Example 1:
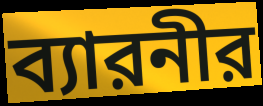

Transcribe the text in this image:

ব্যারনীর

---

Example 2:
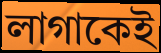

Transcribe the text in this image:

লাগাকেই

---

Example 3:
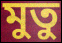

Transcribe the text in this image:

মুতু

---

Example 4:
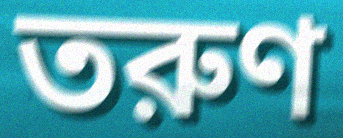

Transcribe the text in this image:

তরুণ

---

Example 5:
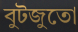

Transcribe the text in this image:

বুটজুতো